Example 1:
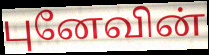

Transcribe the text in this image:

புனேவின்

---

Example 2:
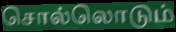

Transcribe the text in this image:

சொல்லொடும்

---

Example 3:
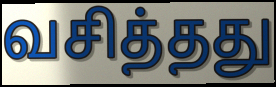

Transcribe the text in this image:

வசித்தது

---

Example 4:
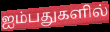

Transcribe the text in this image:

ஐம்பதுகளில்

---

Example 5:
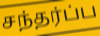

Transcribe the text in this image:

சந்தர்ப்ப